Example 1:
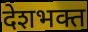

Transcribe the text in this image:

देशभक्त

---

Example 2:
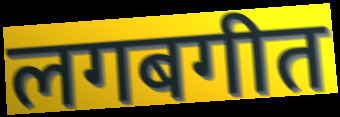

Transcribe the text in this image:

लगबगीत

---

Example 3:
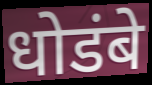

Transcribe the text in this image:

धोडंबे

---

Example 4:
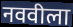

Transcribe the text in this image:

नववीला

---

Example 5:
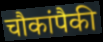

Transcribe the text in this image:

चौकांपैकी